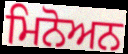
ਮਿਨੋਅਨ